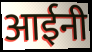
आईनी